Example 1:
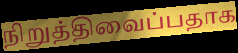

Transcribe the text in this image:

நிறுத்திவைப்பதாக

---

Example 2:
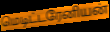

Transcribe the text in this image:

மெடிட்டரேனியன்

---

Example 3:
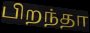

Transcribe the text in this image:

பிறந்தா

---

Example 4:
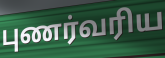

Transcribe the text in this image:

புணர்வரிய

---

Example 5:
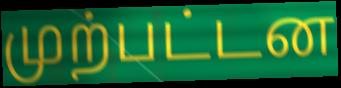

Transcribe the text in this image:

முற்பட்டன